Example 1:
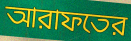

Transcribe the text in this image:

আরাফতের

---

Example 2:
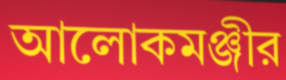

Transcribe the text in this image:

আলোকমঞ্জীর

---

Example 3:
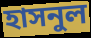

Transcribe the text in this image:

হাসনুল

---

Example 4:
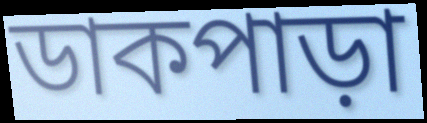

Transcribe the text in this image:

ডাকপাড়া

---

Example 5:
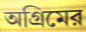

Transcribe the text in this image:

অগ্রিমের